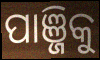
ପାଞ୍ଜିକୁ